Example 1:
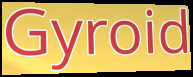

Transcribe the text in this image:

Gyroid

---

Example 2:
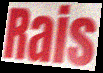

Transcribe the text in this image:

Rais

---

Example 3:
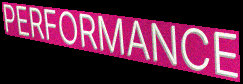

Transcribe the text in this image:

PERFORMANCE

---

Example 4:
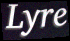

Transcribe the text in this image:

Lyre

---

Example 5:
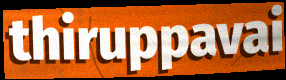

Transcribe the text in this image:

thiruppavai